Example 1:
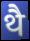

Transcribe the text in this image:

थै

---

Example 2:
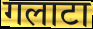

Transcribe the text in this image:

गलाटा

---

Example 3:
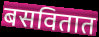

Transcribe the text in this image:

बसवितात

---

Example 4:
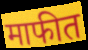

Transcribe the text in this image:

माफीत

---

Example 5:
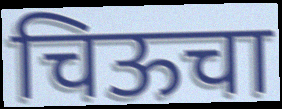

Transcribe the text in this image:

चिऊचा